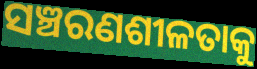
ସଞ୍ଚରଣଶୀଳତାକୁ